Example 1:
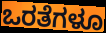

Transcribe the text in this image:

ಒರತೆಗಳೂ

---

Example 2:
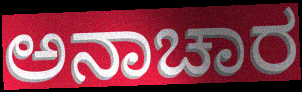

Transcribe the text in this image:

ಅನಾಚಾರ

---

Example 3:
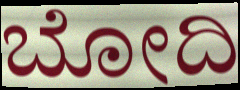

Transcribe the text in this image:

ಬೋದಿ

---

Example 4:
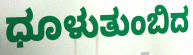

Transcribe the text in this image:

ಧೂಳುತುಂಬಿದ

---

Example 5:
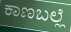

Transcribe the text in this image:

ಕಾಣಬಲ್ಲೆ